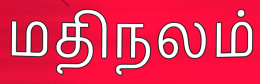
மதிநலம்